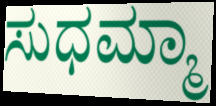
ಸುಧಮ್ಮಾ